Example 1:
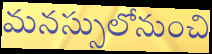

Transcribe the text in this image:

మనస్సులోనుంచి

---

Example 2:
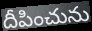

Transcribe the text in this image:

దీపించును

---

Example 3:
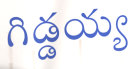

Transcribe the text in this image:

గిడ్డయ్య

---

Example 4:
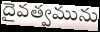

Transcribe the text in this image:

దైవత్వమును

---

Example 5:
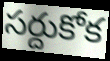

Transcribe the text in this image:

సర్దుకోక